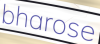
bharose